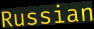
Russian